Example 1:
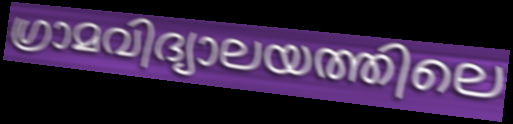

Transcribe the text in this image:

ഗ്രാമവിദ്യാലയത്തിലെ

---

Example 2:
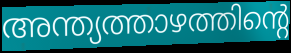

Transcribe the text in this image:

അന്ത്യത്താഴത്തിന്റെ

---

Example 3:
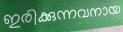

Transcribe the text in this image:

ഇരിക്കുന്നവനായ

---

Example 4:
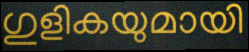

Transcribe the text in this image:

ഗുളികയുമായി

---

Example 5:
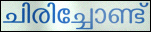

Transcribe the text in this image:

ചിരിച്ചോണ്ട്